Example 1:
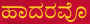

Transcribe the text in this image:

ಹಾದರವೊ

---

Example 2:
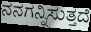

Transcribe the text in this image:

ನನಗನ್ನಿಸುತ್ತದೆ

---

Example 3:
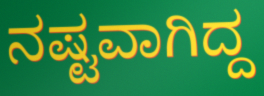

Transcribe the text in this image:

ನಷ್ಟವಾಗಿದ್ದ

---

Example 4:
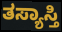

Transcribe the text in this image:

ತಸ್ಯಾಸ್ತಿ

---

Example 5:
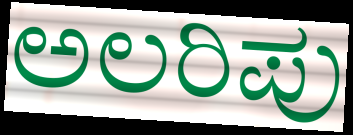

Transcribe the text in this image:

ಅಲರಿಪು